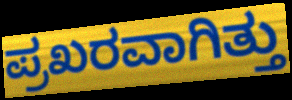
ಪ್ರಖರವಾಗಿತ್ತು